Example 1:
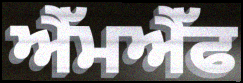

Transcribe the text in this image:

ਐੱਮਐੱਫ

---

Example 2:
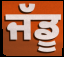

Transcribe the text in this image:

ਜੱਡੂ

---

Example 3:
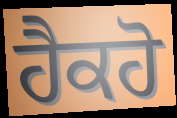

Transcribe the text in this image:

ਹੈਕਹੋ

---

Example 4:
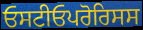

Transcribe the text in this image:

ਓਸਟੀਓਪਰੋਰਿਸਸ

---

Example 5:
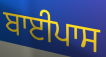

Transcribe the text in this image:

ਬਾਈਪਾਸ